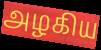
அழகிய